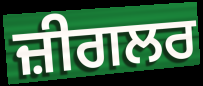
ਜ਼ੀਗਲਰ